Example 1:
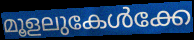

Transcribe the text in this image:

മൂളലുകേൾക്കേ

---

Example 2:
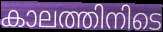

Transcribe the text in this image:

കാലത്തിനിടെ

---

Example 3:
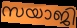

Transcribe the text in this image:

സയാജി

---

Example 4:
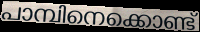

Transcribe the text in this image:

പാമ്പിനെക്കൊണ്ട്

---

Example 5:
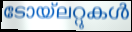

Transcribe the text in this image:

ടോയ്‌ലറ്റുകൾ